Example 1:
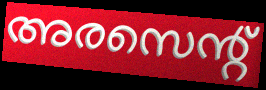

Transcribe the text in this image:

അരസെന്റ്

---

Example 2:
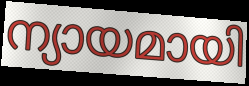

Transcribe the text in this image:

ന്യായമായി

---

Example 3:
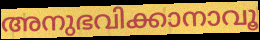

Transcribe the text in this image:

അനുഭവിക്കാനാവൂ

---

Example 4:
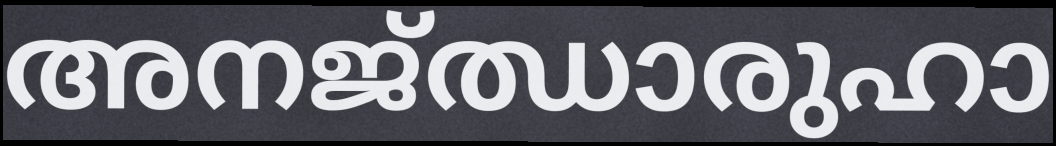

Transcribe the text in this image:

അനജ്ഝാരുഹാ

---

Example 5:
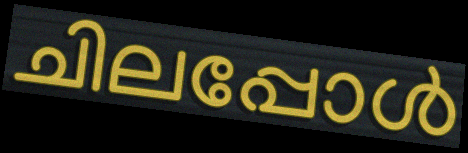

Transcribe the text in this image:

ചിലപ്പോൾ